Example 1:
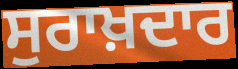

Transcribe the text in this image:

ਸੁਰਾਖ਼ਦਾਰ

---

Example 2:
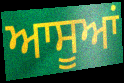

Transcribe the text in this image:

ਆਸੂਆਂ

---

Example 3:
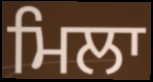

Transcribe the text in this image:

ਮਿਲਾ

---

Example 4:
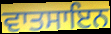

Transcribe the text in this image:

ਵਾਤਸਾਇਨ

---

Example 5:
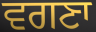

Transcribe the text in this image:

ਵਗਣਾ